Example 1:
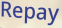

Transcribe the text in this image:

Repay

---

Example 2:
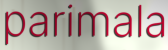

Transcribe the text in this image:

parimala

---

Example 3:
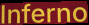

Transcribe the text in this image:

Inferno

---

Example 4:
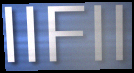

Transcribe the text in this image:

IIFII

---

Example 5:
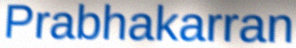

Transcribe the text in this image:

Prabhakarran